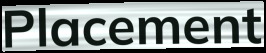
Placement